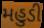
મહુડી